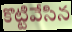
కొట్టివేసిన